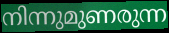
നിന്നുമുണരുന്ന